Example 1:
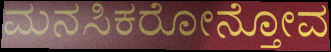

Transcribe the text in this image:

ಮನಸಿಕರೋನ್ತೋವ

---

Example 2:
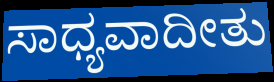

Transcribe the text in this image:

ಸಾಧ್ಯವಾದೀತು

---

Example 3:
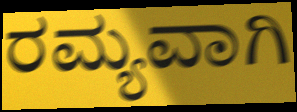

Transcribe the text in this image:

ರಮ್ಯವಾಗಿ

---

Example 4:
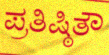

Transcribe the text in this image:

ಪ್ರತಿಷ್ಠಿತೌ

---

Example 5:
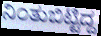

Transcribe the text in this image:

ನಿಂತುಬಿಟ್ಟಿದ್ದ